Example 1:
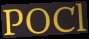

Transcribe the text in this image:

POCl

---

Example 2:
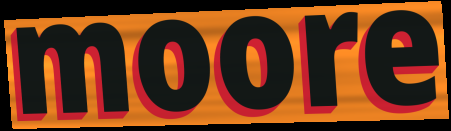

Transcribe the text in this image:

moore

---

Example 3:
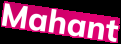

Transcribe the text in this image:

Mahant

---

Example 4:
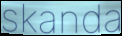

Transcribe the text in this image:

skanda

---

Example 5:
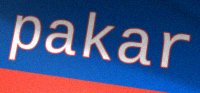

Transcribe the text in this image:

pakar